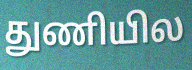
துணியில